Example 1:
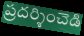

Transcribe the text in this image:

ప్రదర్శించెడి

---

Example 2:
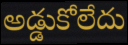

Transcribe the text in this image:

అడ్డుకోలేదు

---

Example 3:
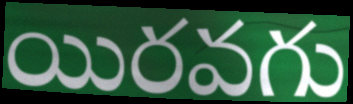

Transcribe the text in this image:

యిరవగు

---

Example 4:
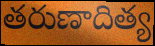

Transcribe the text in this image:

తరుణాదిత్య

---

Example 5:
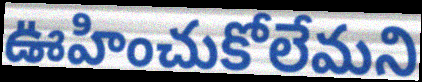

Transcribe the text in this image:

ఊహించుకోలేమని